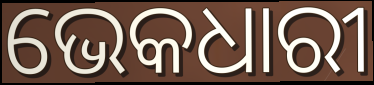
ଭେକଧାରୀ